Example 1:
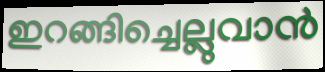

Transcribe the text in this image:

ഇറങ്ങിച്ചെല്ലുവാൻ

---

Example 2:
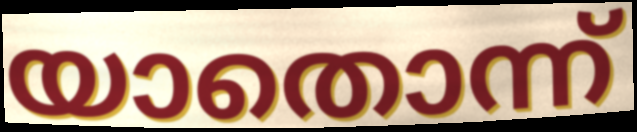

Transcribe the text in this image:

യാതൊന്ന്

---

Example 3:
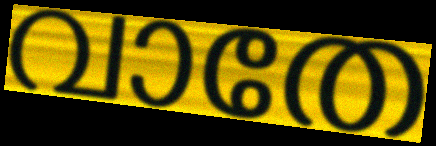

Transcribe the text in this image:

വാതേ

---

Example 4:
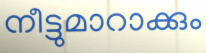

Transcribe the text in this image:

നീട്ടുമാറാക്കും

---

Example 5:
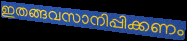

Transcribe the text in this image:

ഇതങ്ങവസാനിപ്പിക്കണം